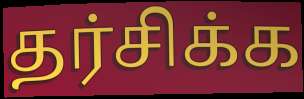
தர்சிக்க